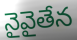
నైవైతేన